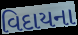
વિદાયના